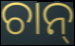
ଚାନ୍